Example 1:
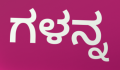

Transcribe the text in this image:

ಗಳನ್ನ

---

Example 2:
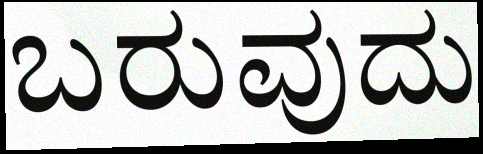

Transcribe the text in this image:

ಬರುವುದು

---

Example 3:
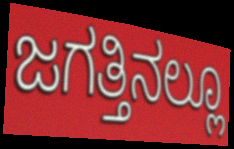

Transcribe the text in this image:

ಜಗತ್ತಿನಲ್ಲೂ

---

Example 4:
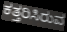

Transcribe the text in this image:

ಕತ್ತರಿಸಿರುವ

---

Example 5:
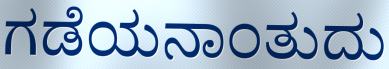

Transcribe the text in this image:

ಗಡೆಯನಾಂತುದು